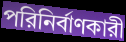
পরিনির্বাণকারী